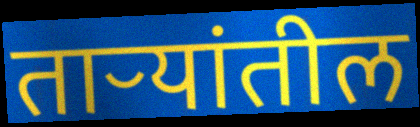
ताऱ्यांतील